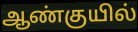
ஆண்குயில்